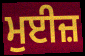
ਮੁਈਜ਼